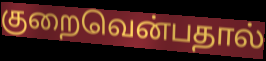
குறைவென்பதால்